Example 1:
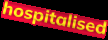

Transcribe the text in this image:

hospitalised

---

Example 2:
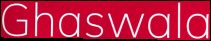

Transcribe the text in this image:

Ghaswala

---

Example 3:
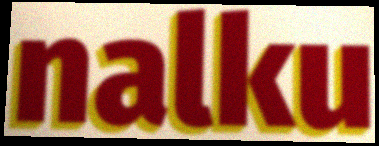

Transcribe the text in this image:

nalku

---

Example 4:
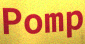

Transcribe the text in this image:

Pomp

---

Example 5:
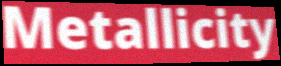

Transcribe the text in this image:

Metallicity